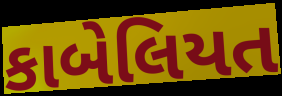
કાબેલિયત